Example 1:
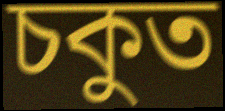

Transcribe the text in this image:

চকুত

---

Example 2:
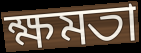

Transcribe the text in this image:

ক্ষমতা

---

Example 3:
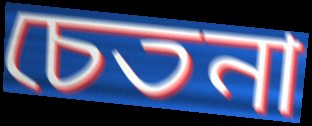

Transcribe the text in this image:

চেতনা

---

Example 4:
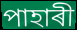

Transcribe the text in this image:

পাহাৰী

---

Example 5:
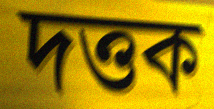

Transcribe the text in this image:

দত্তক